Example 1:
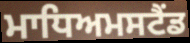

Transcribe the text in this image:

ਮਾਧਿਅਮਸਟੈਂਡ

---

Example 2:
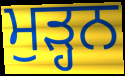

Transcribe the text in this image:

ਮੁੜ੍ਹਨ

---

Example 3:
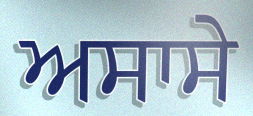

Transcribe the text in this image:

ਅਸਾਸੇ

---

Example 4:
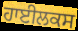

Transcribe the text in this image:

ਹਾਈਲਕਸ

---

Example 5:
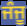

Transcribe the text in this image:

ਜੰਜੂ